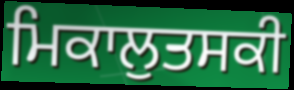
ਮਿਕਾਲੁਤਸਕੀ